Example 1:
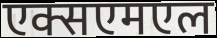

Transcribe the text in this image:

एक्सएमएल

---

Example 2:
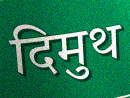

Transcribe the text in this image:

दिमुथ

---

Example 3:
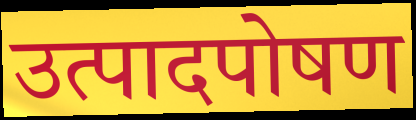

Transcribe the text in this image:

उत्पादपोषण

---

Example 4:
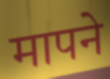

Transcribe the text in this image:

मापने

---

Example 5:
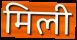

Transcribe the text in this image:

मिली